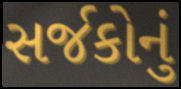
સર્જકોનું